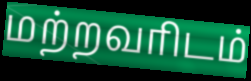
மற்றவரிடம்